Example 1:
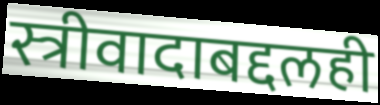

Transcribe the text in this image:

स्त्रीवादाबद्दलही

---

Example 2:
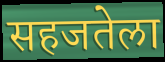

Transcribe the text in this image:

सहजतेला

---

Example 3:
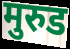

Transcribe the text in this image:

मुरुड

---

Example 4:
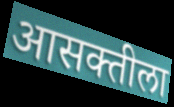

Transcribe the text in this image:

आसक्तीला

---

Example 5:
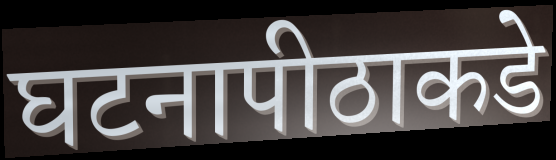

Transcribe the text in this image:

घटनापीठाकडे